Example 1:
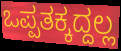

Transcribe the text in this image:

ಒಪ್ಪತಕ್ಕದ್ದಲ್ಲ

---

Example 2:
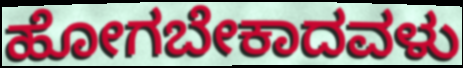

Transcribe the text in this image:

ಹೋಗಬೇಕಾದವಳು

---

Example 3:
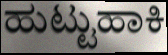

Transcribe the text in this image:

ಹುಟ್ಟುಹಾಕಿ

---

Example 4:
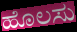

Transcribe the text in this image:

ಹೊಲಸು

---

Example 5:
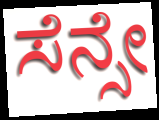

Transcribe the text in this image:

ಸೆನ್ಸೇ